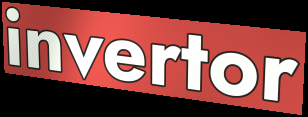
invertor